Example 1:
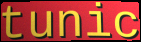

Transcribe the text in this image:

tunic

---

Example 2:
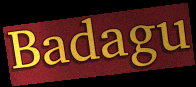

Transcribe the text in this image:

Badagu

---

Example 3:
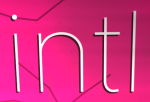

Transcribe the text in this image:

intl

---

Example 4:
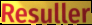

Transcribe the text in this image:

Resuller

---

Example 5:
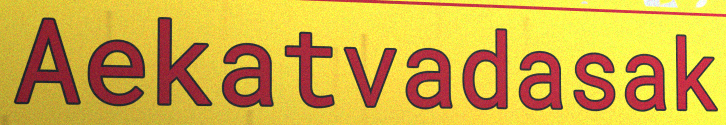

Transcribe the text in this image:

Aekatvadasak